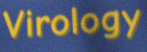
Virology